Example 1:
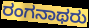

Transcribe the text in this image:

ರಂಗನಾಥರು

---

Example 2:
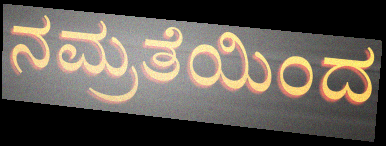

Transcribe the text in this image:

ನಮ್ರತೆಯಿಂದ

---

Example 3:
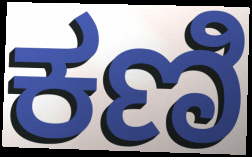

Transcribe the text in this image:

ಕಣಿ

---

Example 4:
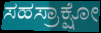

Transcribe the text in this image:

ಸಹಸ್ರಾಕ್ಷೋ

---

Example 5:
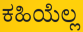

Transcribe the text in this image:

ಕಹಿಯೆಲ್ಲ